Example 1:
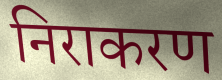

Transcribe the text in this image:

निराकरण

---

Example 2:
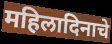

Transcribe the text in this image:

महिलादिनाचे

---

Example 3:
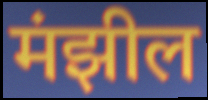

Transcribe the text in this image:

मंझील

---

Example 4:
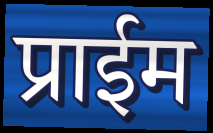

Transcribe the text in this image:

प्राईम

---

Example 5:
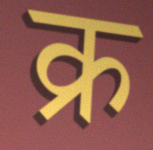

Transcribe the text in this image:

क्र